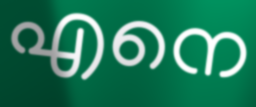
എനെ